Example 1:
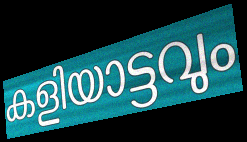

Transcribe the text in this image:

കളിയാട്ടവും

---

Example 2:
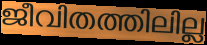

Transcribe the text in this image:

ജീവിതത്തിലില്ല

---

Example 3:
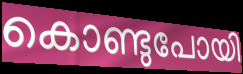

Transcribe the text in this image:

കൊണ്ടുപോയി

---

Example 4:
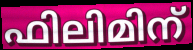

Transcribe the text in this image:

ഫിലിമിന്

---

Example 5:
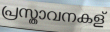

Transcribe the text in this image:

പ്രസ്താവനകള്